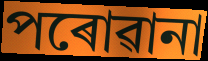
পৰোৱানা